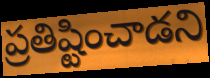
ప్రతిష్టించాడని